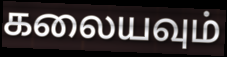
கலையவும்